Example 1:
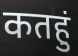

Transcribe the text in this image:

कतहुं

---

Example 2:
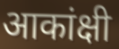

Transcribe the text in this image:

आकांक्षी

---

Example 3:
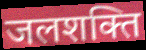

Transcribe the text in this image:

जलशक्ति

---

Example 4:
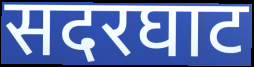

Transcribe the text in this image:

सदरघाट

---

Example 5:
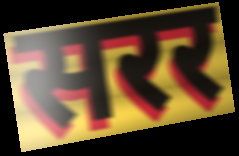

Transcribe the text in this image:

सरर